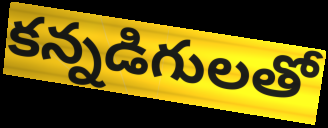
కన్నడిగులతో